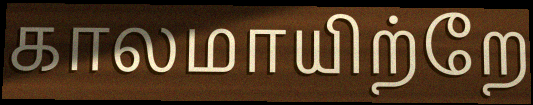
காலமாயிற்றே